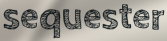
sequester